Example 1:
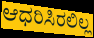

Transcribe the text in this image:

ಆಧರಿಸಿರಲಿಲ್ಲ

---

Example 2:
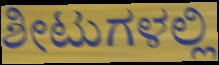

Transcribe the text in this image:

ಶೀಟುಗಳಲ್ಲಿ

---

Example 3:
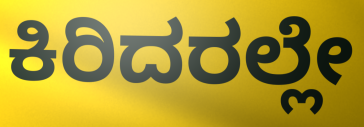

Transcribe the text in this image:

ಕಿರಿದರಲ್ಲೇ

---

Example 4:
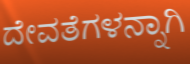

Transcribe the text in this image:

ದೇವತೆಗಳನ್ನಾಗಿ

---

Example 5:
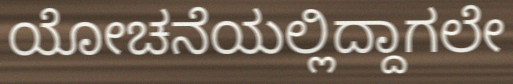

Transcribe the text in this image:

ಯೋಚನೆಯಲ್ಲಿದ್ದಾಗಲೇ